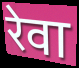
रेवा